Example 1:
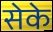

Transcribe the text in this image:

सेके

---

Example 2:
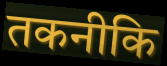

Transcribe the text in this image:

तकनीकि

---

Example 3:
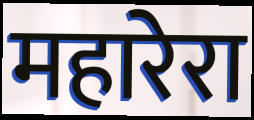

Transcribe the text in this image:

महारेरा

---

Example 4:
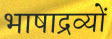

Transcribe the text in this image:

भाषाद्रव्यों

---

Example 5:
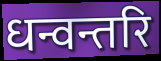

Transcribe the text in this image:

धन्वन्तरि